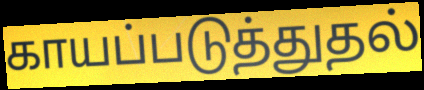
காயப்படுத்துதல்